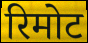
रिमोट